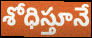
శోధిస్తూనే